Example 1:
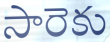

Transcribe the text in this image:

సారెకు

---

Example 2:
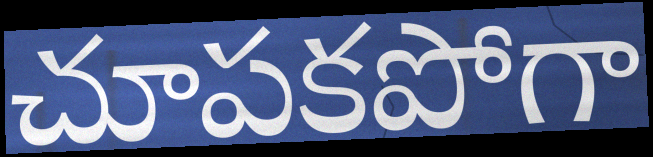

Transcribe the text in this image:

చూపకపోగా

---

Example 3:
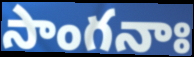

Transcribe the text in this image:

సాంగనాః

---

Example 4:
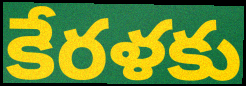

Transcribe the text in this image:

కేరళకు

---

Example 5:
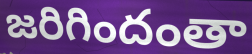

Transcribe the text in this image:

జరిగిందంతా